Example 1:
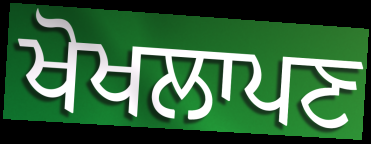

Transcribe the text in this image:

ਖੋਖਲਾਪਣ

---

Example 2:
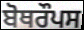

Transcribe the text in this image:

ਬੋਥਰੌਪਸ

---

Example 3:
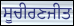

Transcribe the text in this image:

ਸੂਚੀਰਣਜੀਤ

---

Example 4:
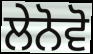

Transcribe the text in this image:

ਲੇਨੋਵੋ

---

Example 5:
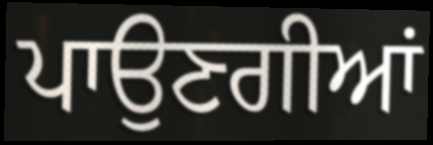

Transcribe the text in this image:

ਪਾਉਣਗੀਆਂ